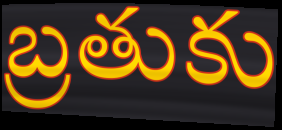
బ్రతుకు